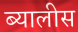
ब्यालीस